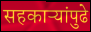
सहकाऱ्यांपुढे